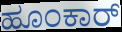
ಹೂಂಕಾರ್